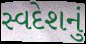
સ્વદેશનું